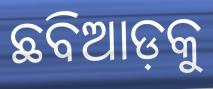
ଛବିଆଡ଼କୁ